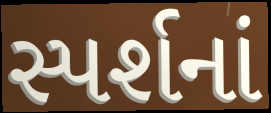
સ્પર્શનાં